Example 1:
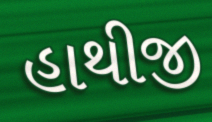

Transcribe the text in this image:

હાથીજી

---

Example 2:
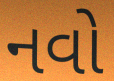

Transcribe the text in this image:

નવો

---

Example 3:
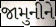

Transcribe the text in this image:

જામુનીને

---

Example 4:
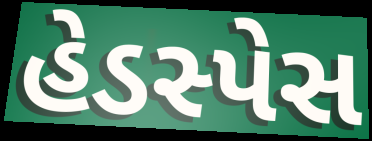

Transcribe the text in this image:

હેડસ્પેસ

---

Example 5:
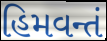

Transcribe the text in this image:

હિમવન્તં